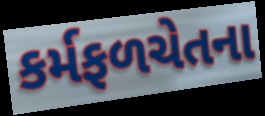
કર્મફળચેતના